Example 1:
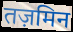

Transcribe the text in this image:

तज़मिन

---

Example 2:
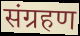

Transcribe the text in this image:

संग्रहण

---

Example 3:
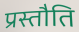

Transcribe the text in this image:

प्रस्तौति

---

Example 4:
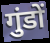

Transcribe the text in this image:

गुंडों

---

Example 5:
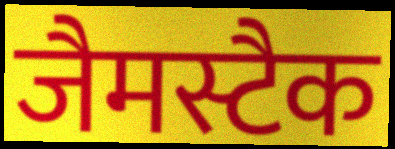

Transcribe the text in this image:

जैमस्टैक